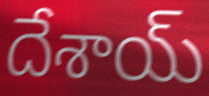
దేశాయ్